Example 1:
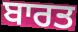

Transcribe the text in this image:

ਬਾਰਤ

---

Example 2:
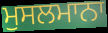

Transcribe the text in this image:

ਮੁਸਲਮਾਨਾ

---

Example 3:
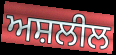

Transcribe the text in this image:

ਅਸ਼ਲੀਲ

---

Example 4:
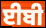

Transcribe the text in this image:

ਈਬੀ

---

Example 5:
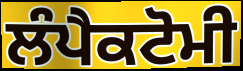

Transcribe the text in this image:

ਲੰਪੈਕਟੋਮੀ